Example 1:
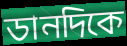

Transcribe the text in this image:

ডানদিকে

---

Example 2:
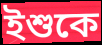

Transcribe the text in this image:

ইশুকে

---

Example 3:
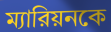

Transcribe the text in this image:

ম্যারিয়নকে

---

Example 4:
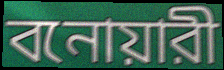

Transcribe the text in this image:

বনোয়ারী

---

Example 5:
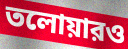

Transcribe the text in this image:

তলোয়ারও